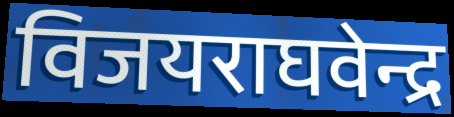
विजयराघवेन्द्र